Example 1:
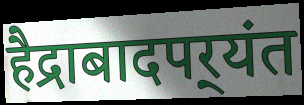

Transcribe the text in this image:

हैद्राबादपर्यंत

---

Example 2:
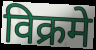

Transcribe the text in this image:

विक्रमे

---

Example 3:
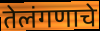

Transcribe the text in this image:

तेलंगणाचे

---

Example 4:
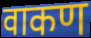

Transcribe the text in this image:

वाकण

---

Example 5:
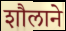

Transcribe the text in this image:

शौलाने